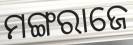
ମଙ୍ଗରାଜେ